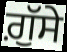
ਗ਼ੁੱਸੇ